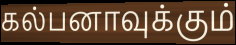
கல்பனாவுக்கும்